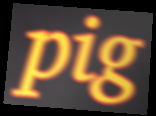
pig